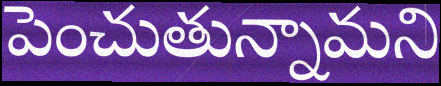
పెంచుతున్నామని